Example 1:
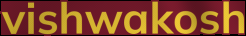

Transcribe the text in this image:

vishwakosh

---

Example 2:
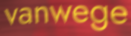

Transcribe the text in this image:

vanwege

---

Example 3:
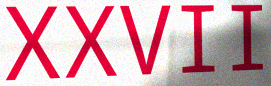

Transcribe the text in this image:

XXVII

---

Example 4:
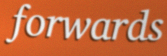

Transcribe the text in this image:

forwards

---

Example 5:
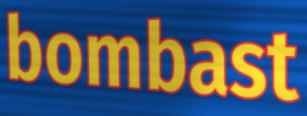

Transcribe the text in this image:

bombast